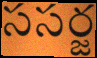
ససర్జ